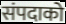
संपदाको